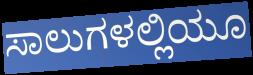
ಸಾಲುಗಳಲ್ಲಿಯೂ